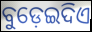
ବୁଡ଼େଇଦିଏ